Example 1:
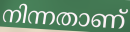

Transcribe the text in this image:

നിന്നതാണ്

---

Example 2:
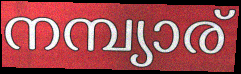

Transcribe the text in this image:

നമ്പ്യാര്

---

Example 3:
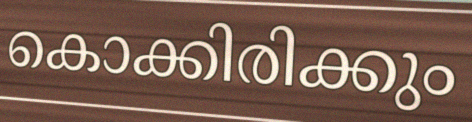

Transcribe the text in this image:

കൊക്കിരിക്കും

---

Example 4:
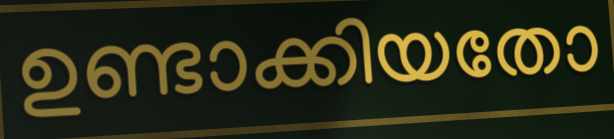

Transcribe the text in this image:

ഉണ്ടാക്കിയതോ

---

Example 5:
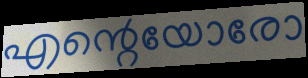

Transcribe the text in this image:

എന്റെയോരോ